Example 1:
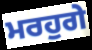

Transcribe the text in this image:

ਮਰਹੁਗੇ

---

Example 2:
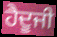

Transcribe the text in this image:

ਹੈਦੂਜੀ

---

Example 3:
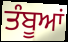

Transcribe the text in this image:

ਤੰਬੂਆਂ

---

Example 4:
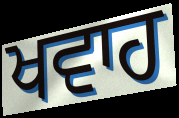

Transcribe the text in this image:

ਖਵਾਹ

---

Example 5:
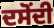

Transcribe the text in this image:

ਦਸੋਂਦੀ